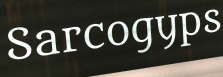
Sarcogyps